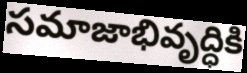
సమాజాభివృద్ధికి